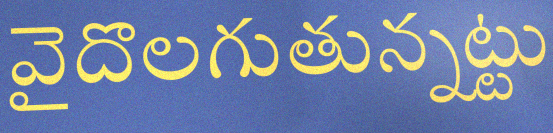
వైదొలగుతున్నట్టు